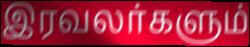
இரவலர்களும்